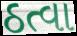
ઠત્વા